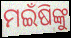
ମଇଁଷିଙ୍କୁ